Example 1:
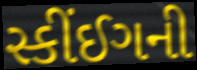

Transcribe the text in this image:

સ્કીંઈગની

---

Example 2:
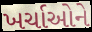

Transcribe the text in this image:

ખર્ચાઓને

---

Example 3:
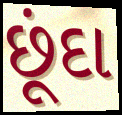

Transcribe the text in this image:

છૂંદા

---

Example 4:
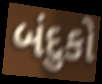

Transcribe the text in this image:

બંદુકો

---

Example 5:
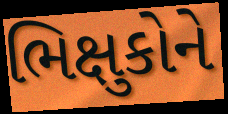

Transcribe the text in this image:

ભિક્ષુકોને